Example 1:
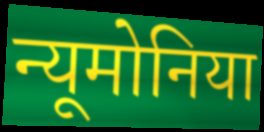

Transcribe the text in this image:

न्यूमोनिया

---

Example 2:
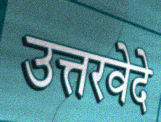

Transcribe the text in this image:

उत्तरवेदे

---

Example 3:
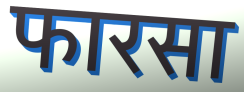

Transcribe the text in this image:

फारसा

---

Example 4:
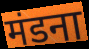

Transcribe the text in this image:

मंडना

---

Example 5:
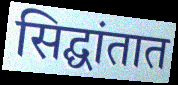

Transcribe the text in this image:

सिद्घांतात